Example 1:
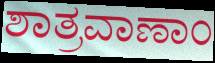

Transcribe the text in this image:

ಶಾತ್ರವಾಣಾಂ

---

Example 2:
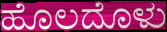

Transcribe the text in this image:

ಹೊಲದೊಳು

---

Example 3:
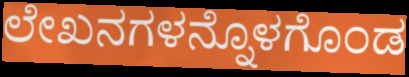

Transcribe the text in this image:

ಲೇಖನಗಳನ್ನೊಳಗೊಂಡ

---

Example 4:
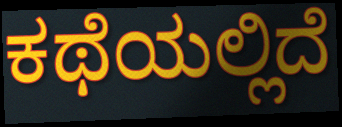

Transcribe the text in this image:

ಕಥೆಯಲ್ಲಿದೆ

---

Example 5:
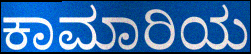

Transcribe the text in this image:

ಕಾಮಾರಿಯ